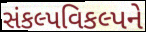
સંકલ્પવિકલ્પને